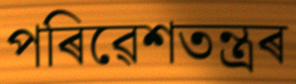
পৰিৱেশতন্ত্ৰৰ